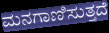
ಮನಗಾಣಿಸುತ್ತದೆ